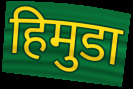
हिमुडा